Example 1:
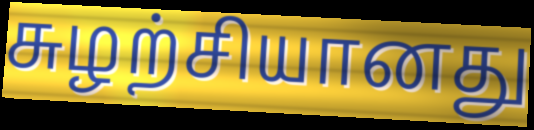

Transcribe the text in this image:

சுழற்சியானது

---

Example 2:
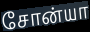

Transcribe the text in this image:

சோன்யா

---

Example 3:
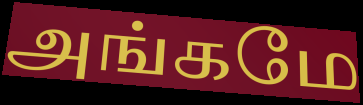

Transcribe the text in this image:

அங்கமே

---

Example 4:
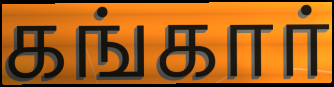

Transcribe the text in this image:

கங்கார்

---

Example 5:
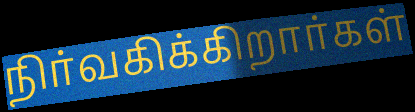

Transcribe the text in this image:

நிர்வகிக்கிறார்கள்